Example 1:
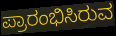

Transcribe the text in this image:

ಪ್ರಾರಂಭಿಸಿರುವ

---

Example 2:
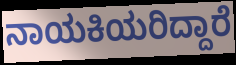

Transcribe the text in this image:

ನಾಯಕಿಯರಿದ್ದಾರೆ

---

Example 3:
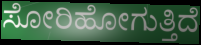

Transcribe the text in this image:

ಸೋರಿಹೋಗುತ್ತಿದೆ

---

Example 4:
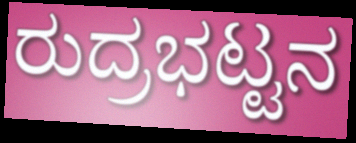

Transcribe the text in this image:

ರುದ್ರಭಟ್ಟನ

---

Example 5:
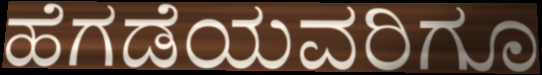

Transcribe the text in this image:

ಹೆಗಡೆಯವರಿಗೂ